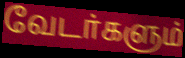
வேடர்களும்